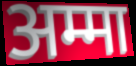
अम्‍मा